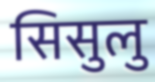
सिसुलु